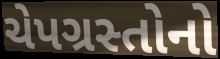
ચેપગ્રસ્તોનો